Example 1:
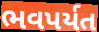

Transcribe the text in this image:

ભવપર્યત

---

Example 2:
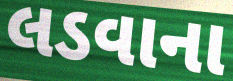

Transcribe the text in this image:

લડવાના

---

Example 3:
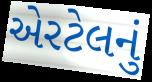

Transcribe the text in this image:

એરટેલનું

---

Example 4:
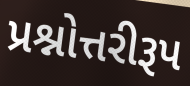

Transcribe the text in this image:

પ્રશ્નોત્તરીરૂપ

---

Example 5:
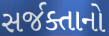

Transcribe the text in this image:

સર્જક્તાનો